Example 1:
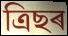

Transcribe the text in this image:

ত্ৰিছৰ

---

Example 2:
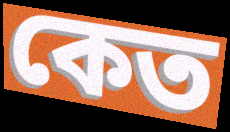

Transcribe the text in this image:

কেত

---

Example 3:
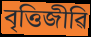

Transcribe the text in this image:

বৃত্তিজীৱি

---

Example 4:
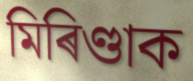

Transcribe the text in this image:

মিৰিণ্ডাক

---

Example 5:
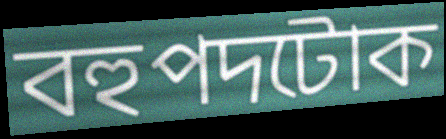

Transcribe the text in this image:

বহুপদটোক